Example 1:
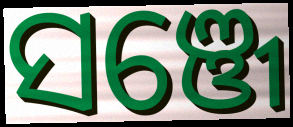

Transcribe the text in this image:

ସଞ୍ଜେ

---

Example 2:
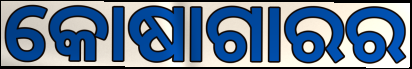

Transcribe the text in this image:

କୋଷାଗାରର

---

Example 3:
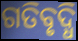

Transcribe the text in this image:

ଗତିବୃଦ୍ଧି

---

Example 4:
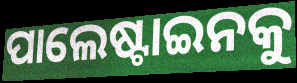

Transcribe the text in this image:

ପାଲେଷ୍ଟାଇନକୁ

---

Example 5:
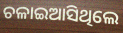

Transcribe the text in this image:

ଚଳାଇଆସିଥିଲେ